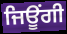
ਜਿਊਂਗੀ